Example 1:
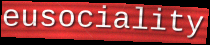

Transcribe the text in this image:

eusociality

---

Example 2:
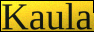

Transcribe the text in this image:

Kaula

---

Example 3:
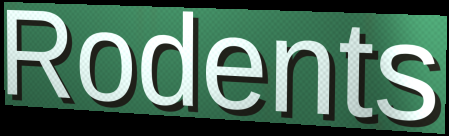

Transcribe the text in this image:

Rodents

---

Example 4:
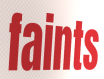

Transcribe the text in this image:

faints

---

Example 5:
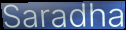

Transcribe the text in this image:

Saradha